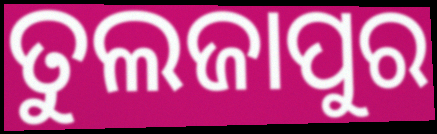
ତୁଲଜାପୁର